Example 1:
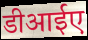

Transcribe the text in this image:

डीआईए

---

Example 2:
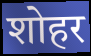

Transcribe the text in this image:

शोहर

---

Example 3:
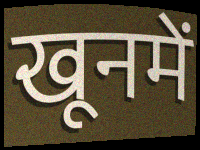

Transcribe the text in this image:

खूनमें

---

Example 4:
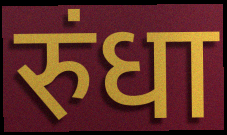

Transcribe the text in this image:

रुंधा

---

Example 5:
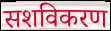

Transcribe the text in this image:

सशविकरण